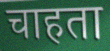
चाहता